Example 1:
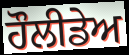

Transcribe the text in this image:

ਹੌਲੀਡੇਅ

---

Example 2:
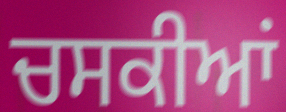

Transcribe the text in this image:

ਚਸਕੀਆਂ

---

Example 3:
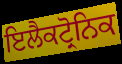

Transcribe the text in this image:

ਇਲੈਕਟ੍ਰੋਨਿਕ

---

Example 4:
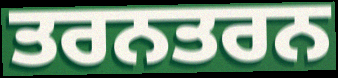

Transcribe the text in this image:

ਤਰਨਤਰਨ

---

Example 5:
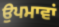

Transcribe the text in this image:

ਉਪਮਾਵਾਂ